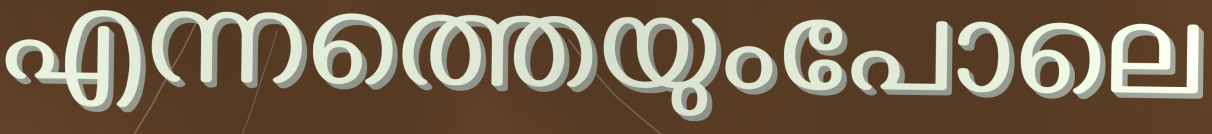
എന്നത്തെയുംപോലെ